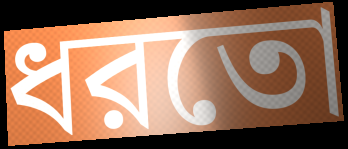
ধরতো